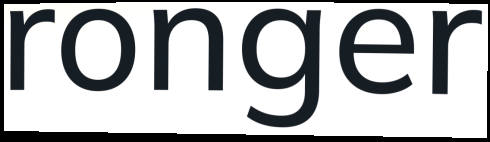
ronger